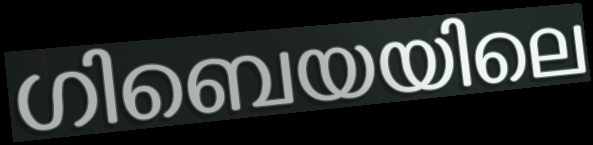
ഗിബെയയിലെ